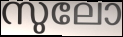
സുലോ